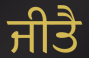
ਜੀਤੈ